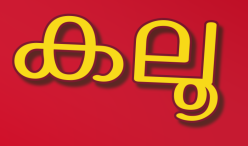
കലൂ